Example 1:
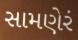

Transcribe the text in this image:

સામણેરં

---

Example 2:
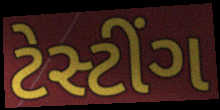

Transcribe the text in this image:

ટેસ્ટીંગ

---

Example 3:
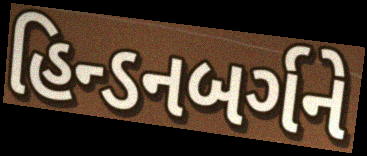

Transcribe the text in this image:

હિન્ડનબર્ગને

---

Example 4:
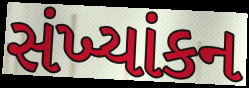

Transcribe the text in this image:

સંખ્યાંકન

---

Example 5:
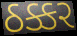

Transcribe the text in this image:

ઠક્કર